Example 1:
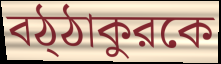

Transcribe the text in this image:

বঠ্ঠাকুরকে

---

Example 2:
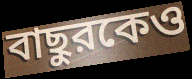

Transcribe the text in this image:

বাছুরকেও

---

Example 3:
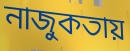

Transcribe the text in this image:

নাজুকতায়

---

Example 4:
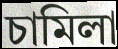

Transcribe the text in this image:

চামিলা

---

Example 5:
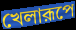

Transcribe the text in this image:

খেলারূপে